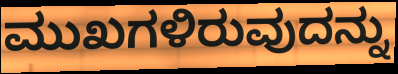
ಮುಖಗಳಿರುವುದನ್ನು